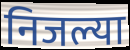
निजल्या